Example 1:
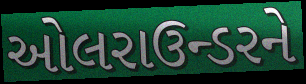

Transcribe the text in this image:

ઓલરાઉન્ડરને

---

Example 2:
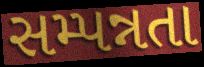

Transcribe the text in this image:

સમ્પન્નતા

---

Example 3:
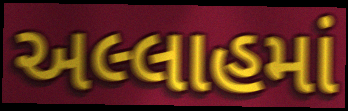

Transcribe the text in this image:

અલ્લાહમાં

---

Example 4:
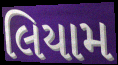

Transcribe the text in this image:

લિયામ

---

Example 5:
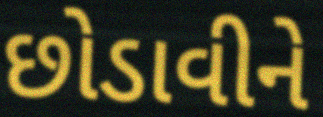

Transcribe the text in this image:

છોડાવીને